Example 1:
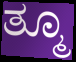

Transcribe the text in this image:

ತ್ಮೂ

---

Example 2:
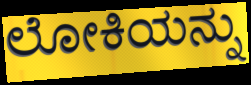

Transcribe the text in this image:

ಲೋಕಿಯನ್ನು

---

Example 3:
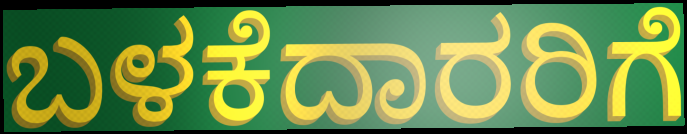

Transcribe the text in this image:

ಬಳಕೆದಾರರಿಗೆ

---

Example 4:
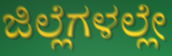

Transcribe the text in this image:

ಜಿಲ್ಲೆಗಳಲ್ಲೇ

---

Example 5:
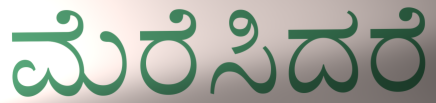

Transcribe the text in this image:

ಮೆರೆಸಿದರೆ